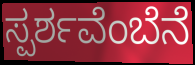
ಸ್ಪರ್ಶವೆಂಬೆನೆ